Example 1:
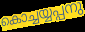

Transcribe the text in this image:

കൊച്ചയ്യപ്പനു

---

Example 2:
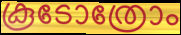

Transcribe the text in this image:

കൂടോത്രോം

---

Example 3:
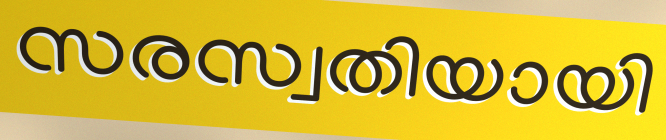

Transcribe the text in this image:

സരസ്വതിയായി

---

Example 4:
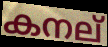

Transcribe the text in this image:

കനല്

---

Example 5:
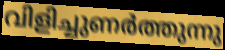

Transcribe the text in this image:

വിളിച്ചുണർത്തുന്നു